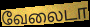
வேலைடா